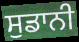
ਸੁਡਾਨੀ